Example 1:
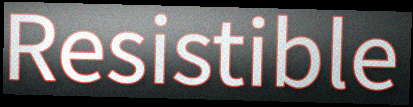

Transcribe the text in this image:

Resistible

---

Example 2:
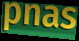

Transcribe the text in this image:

pnas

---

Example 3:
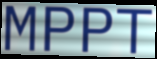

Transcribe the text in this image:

MPPT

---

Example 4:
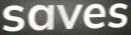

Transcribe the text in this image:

saves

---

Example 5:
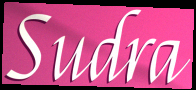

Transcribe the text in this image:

Sudra